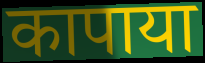
कापाया